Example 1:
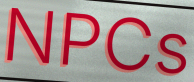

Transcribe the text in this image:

NPCs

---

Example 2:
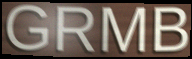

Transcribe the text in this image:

GRMB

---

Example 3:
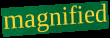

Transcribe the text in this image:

magnified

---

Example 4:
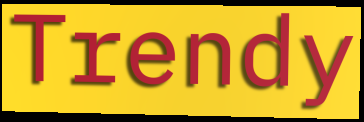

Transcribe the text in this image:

Trendy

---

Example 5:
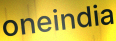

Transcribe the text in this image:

oneindia